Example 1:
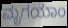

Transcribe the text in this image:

ಮೃಗಯಾಂ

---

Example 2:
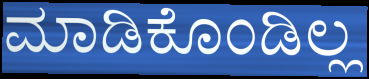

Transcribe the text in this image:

ಮಾಡಿಕೊಂಡಿಲ್ಲ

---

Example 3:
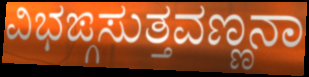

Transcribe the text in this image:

ವಿಭಙ್ಗಸುತ್ತವಣ್ಣನಾ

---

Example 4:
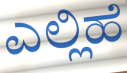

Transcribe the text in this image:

ಎಲ್ಲಿಹೆ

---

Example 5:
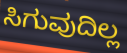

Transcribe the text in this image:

ಸಿಗುವುದಿಲ್ಲ